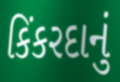
કિંકરદાનું